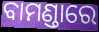
ବାମଣ୍ଡାରେ